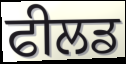
ਫੀਲਡ